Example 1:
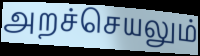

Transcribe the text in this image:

அறச்செயலும்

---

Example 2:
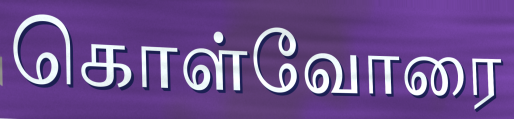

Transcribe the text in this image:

கொள்வோரை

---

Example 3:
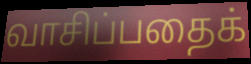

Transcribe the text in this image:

வாசிப்பதைக்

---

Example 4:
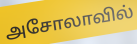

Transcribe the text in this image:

அசோலாவில்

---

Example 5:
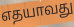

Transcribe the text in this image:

எதயாவது